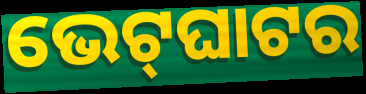
ଭେଟ୍‌ଘାଟର